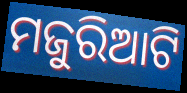
ମଜୁରିଆଟି